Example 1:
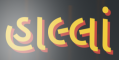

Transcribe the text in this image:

હાલ્લાં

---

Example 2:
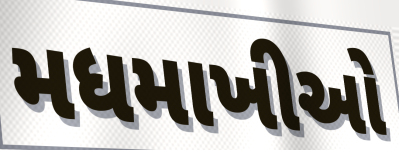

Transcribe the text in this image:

મધમાખીઓ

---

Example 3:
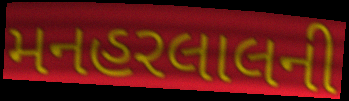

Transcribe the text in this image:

મનહરલાલની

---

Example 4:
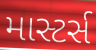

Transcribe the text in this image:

માસ્ટર્સ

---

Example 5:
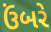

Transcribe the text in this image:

ઉંબરે